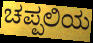
ಚಪ್ಪಲಿಯ